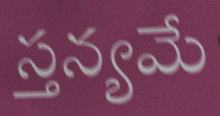
స్తన్యమే